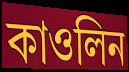
কাওলিন